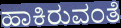
ಹಾಕಿರುವಂತೆ